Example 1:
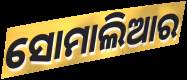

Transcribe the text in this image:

ସୋମାଲିଆର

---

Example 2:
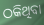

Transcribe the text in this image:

ଠକିଥିବା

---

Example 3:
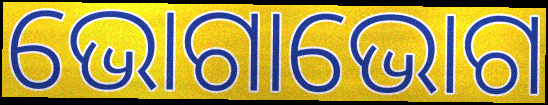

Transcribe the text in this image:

ଭୋଗାଭୋଗ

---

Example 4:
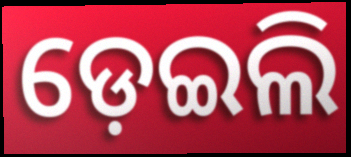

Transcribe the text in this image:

ଡ଼େଇଲି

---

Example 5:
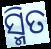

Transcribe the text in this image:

ସ୍ମିତ